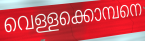
വെള്ളക്കൊമ്പനെ